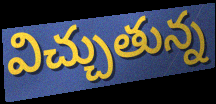
విచ్చుతున్న